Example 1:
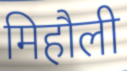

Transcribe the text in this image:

मिहौली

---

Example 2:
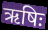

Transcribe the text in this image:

ऋषिः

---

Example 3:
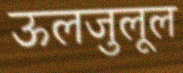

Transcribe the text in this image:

ऊलजुलूल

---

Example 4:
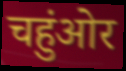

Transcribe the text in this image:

चहुंओर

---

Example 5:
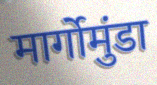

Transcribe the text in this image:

मार्गोमुंडा